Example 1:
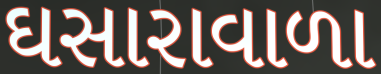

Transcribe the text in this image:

ઘસારાવાળા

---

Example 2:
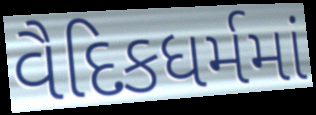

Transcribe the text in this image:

વૈદિકધર્મમાં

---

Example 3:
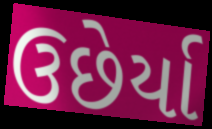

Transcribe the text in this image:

ઉછેર્યા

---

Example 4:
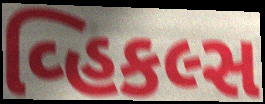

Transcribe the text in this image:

વ્હિકલ્સ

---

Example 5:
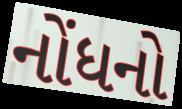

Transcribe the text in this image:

નોંધનો